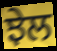
ਝੇਲ